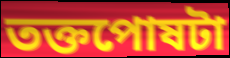
তক্তপোষটা